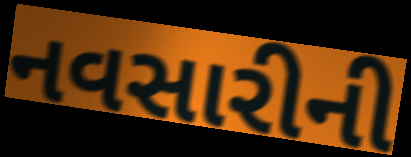
નવસારીની